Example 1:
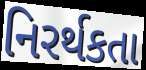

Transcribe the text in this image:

નિરર્થકતા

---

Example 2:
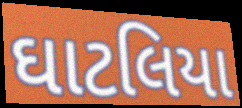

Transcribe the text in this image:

ઘાટલિયા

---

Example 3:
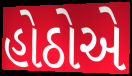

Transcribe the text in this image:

હોઠોએ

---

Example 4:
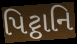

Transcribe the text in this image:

પિટ્ઠાનિ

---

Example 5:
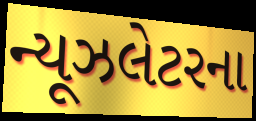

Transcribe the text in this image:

ન્યૂઝલેટરના